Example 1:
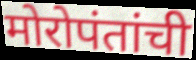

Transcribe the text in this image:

मोरोपंतांची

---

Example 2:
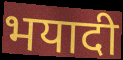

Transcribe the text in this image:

भयादी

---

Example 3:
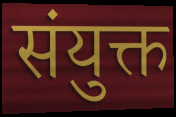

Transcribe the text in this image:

संयुक्त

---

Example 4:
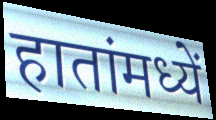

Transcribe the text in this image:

हातांमध्यें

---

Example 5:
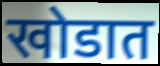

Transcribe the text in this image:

खोडात